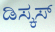
ಡಿಸ್ಕಸ್